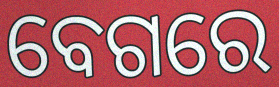
ବେଗରେ